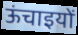
ऊंचाइयों